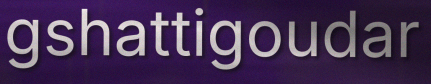
gshattigoudar